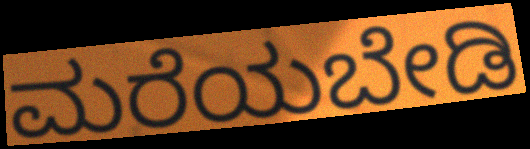
ಮರೆಯಬೇಡಿ